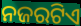
ନଜରଟିଏ